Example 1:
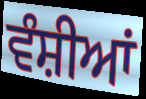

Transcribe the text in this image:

ਵੰਸ਼ੀਆਂ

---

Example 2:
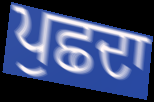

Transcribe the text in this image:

ਪੁਛਦਾ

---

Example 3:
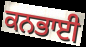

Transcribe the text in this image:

ਕਨਭਾਈ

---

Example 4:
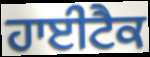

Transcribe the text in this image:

ਹਾਈਟੈਕ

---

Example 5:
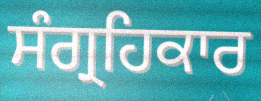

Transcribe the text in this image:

ਸੰਗ੍ਰਹਿਕਾਰ